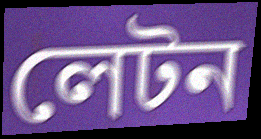
লেটন